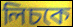
লিচকে